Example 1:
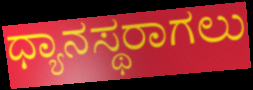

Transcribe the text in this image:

ಧ್ಯಾನಸ್ಥರಾಗಲು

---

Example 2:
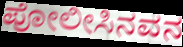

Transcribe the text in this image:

ಪೋಲೀಸಿನವನ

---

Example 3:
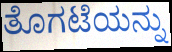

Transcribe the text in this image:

ತೊಗಟೆಯನ್ನು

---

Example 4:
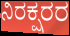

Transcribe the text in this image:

ನಿರಕ್ಷರರ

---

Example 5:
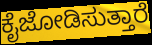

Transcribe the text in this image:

ಕೈಜೋಡಿಸುತ್ತಾರೆ